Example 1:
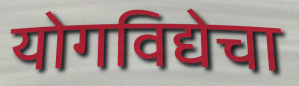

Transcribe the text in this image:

योगविद्येचा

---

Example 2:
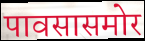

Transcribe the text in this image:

पावसासमोर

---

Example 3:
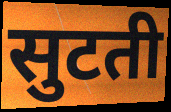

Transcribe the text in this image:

सुटती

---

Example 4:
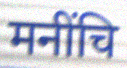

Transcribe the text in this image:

मनींचि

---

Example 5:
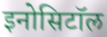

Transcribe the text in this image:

इनोसिटॉल